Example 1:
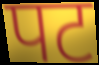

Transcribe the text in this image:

पट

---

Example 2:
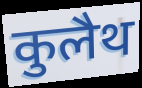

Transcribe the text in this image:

कुलैथ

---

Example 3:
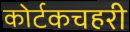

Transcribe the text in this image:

कोर्टकचहरी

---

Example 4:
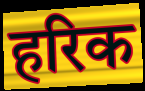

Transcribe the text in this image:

हरिक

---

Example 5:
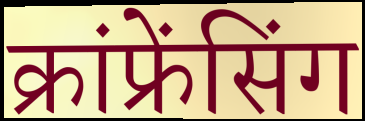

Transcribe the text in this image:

क्रांफ्रेंसिंग